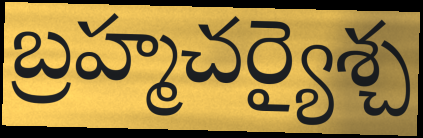
బ్రహ్మచర్యైశ్చ